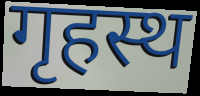
गृहस्थ